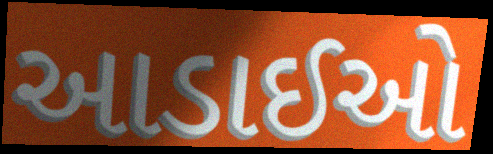
આડાઈઓ